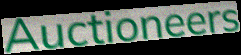
Auctioneers